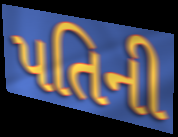
પતિની